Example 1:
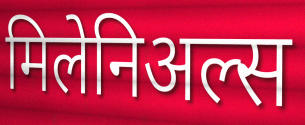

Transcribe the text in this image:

मिलेनिअल्स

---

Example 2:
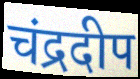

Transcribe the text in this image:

चंद्रदीप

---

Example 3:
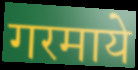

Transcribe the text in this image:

गरमाये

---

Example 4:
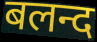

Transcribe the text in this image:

बलन्द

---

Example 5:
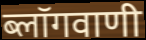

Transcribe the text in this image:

ब्लॉगवाणी